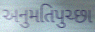
અનુમતિપુચ્છા